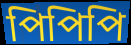
পিপিপি